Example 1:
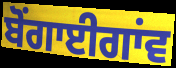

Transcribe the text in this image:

ਬੋਂਗਾਈਗਾਂਵ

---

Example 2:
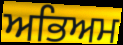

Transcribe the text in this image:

ਅਭਿਅਮ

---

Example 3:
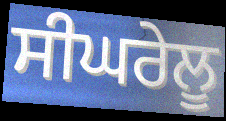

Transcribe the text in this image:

ਸੀਘਰੇਲੂ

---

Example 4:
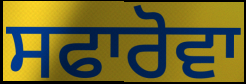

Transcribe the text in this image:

ਸਫਾਰੋਵਾ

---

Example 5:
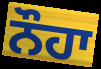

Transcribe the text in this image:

ਨੌਹਾ